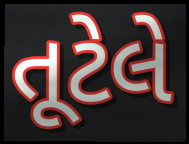
તૂટેલે